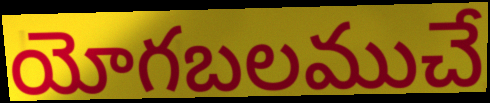
యోగబలముచే